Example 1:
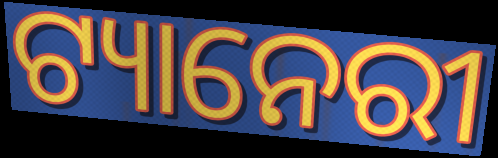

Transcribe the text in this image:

ଟ୍ୟାନେରୀ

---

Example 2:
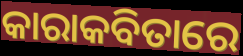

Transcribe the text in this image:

କାରାକବିତାରେ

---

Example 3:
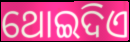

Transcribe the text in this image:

ଥୋଇଦିଏ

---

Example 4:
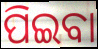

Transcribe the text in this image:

ପିଇବା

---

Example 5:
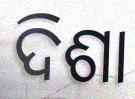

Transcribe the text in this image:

ଦିଶା